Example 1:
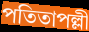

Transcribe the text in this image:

পতিতাপল্লী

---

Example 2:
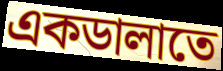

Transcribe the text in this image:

একডালাতে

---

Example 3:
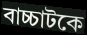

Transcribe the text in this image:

বাচ্চাটকে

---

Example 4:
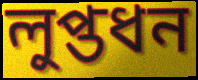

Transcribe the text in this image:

লুপ্তধন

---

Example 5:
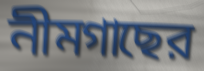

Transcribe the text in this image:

নীমগাছের